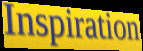
Inspiration